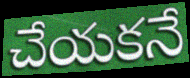
చేయకనే